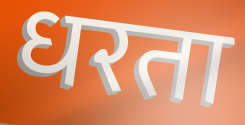
धरता